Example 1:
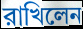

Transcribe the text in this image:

রাখিলেন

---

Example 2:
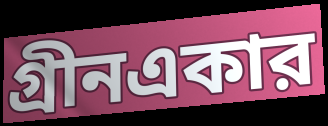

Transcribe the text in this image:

গ্রীনএকার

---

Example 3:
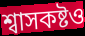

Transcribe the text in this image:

শ্বাসকষ্টও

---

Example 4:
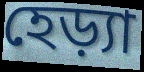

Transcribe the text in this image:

হেড়্যা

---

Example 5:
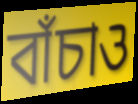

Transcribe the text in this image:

বাঁচাও